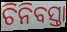
ଚିନିବସ୍ତା